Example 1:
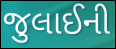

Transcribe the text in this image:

જુલાઈની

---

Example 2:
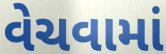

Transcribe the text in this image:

વેચવામાં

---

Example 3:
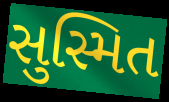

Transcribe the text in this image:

સુસ્મિત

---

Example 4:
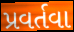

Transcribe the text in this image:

પ્રવર્તવા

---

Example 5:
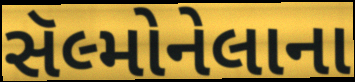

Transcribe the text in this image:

સૅલ્મોનેલાના